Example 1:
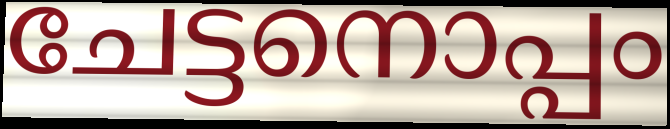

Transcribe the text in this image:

ചേട്ടനൊപ്പം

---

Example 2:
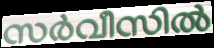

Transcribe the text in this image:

സർവീസിൽ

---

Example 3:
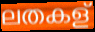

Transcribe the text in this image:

ലതകള്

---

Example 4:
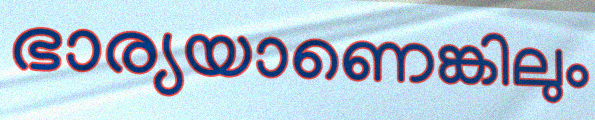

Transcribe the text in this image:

ഭാര്യയാണെങ്കിലും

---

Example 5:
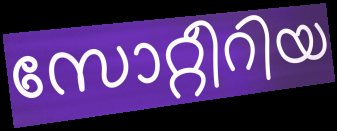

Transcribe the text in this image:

സോറ്റീറിയ